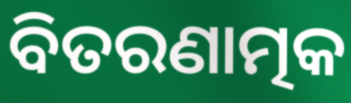
ବିତରଣାତ୍ମକ